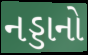
નડ્ડાનો